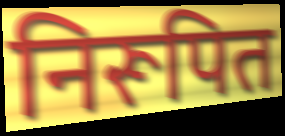
निरूपित